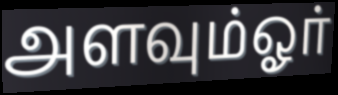
அளவும்ஓர்